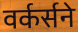
वर्कर्सने